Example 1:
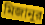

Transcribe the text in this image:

মিজানুর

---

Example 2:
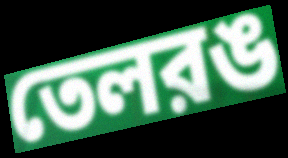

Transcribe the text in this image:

তেলরঙ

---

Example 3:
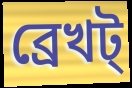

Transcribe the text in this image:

ব্রেখট্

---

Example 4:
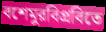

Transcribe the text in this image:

বশেমুরবিপ্রবিতে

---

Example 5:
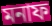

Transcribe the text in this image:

মনাফ